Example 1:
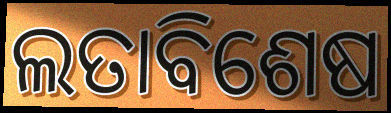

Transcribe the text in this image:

ଲତାବିଶେଷ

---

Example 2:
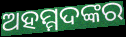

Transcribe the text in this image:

ଅହମ୍ମଦଙ୍କର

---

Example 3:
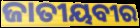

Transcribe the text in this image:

ଜାତୀୟବୀର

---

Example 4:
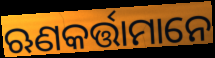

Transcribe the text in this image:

ଋଣକର୍ତ୍ତାମାନେ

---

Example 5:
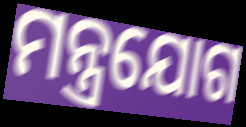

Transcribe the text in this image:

ମନ୍ତ୍ରଯୋଗ